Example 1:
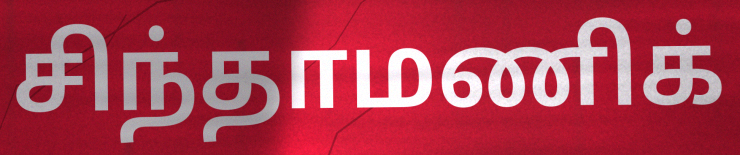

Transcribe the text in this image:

சிந்தாமணிக்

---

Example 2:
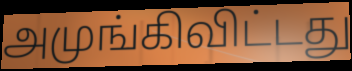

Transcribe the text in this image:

அமுங்கிவிட்டது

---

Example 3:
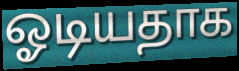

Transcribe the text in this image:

ஓடியதாக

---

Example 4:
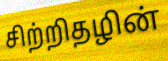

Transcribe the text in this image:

சிற்றிதழின்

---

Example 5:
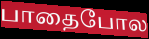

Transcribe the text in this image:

பாதைபோல